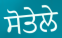
ਸੋਤੇਲੇ